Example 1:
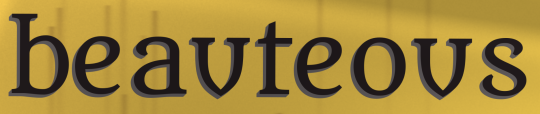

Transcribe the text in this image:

beauteous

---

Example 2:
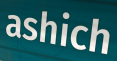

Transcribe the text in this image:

ashich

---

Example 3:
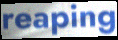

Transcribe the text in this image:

reaping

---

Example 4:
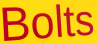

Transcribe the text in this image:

Bolts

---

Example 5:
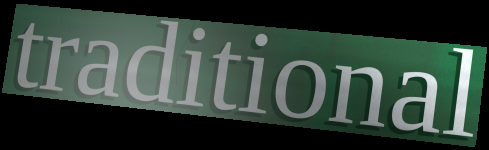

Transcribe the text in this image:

traditional